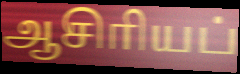
ஆசிரியப்